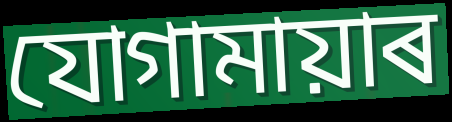
যোগামায়াৰ